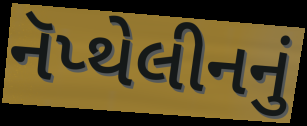
નૅપ્થેલીનનું